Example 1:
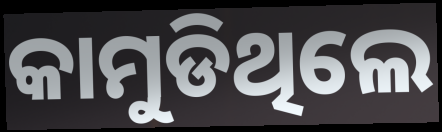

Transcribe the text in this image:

କାମୁଡିଥିଲେ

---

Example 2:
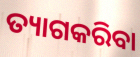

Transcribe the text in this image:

ତ୍ୟାଗକରିବା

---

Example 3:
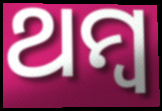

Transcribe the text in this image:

ଥମ୍ବ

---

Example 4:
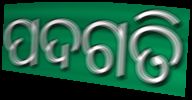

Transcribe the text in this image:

ପଦଗତି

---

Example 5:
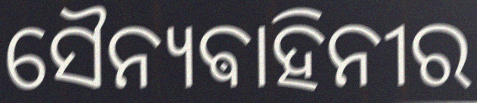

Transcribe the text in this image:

ସୈନ୍ୟଵାହିନୀର